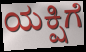
ಯಕ್ಷಿಗೆ